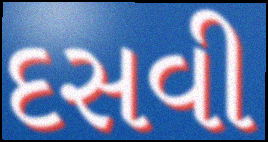
દસવી